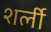
शर्ली